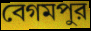
বেগমপুর